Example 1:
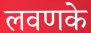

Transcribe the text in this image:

लवणके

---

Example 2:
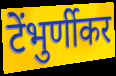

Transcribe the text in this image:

टेंभुर्णीकर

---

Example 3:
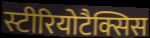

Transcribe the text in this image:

स्टीरियोटैक्सिस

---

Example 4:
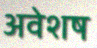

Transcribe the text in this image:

अवेशष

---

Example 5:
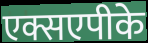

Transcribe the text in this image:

एक्सएपीके